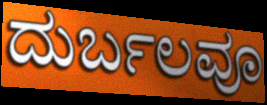
ದುರ್ಬಲವೂ